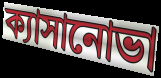
ক্যাসানোভা